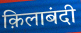
क़िलाबंदी